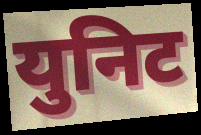
युनिट